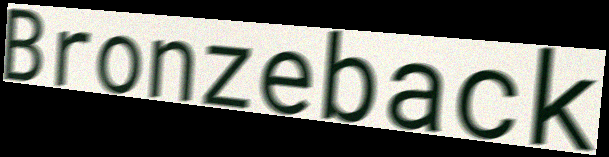
Bronzeback